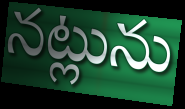
నట్లును